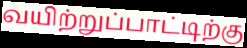
வயிற்றுப்பாட்டிற்கு